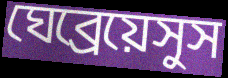
ঘেব্রেয়েসুস